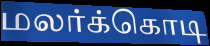
மலர்க்கொடி